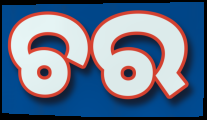
ଚର